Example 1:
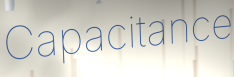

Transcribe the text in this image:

Capacitance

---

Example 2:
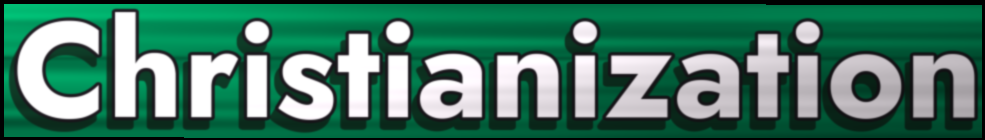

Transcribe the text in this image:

Christianization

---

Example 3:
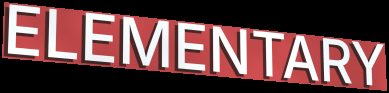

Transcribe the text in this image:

ELEMENTARY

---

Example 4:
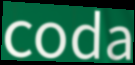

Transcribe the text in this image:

coda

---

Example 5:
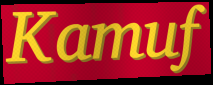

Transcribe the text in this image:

Kamuf